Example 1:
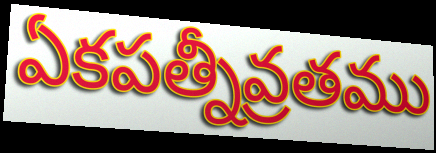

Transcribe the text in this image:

ఏకపత్నీవ్రతము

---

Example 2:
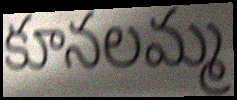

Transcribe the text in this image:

కూనలమ్మ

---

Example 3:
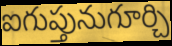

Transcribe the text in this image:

ఐగుప్తునుగూర్చి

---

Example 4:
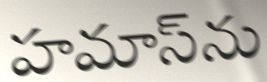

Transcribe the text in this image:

హమాస్‌ను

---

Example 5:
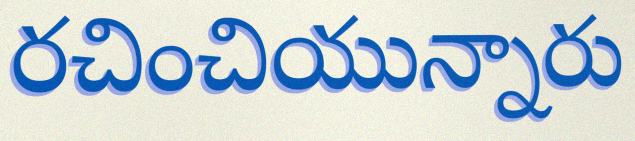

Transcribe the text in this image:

రచించియున్నారు